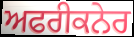
ਅਫਰੀਕਨੇਰ